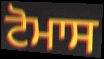
ਟੋਮਾਸ